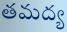
తమద్య